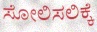
ಸೋಲಿಸಲಿಕ್ಕೆ